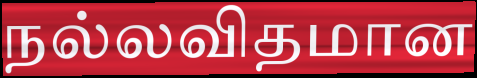
நல்லவிதமான